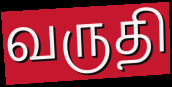
வருதி